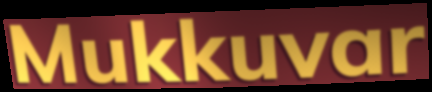
Mukkuvar